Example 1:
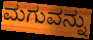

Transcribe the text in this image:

ಮಗುವನ್ನು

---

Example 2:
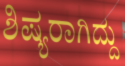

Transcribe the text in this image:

ಶಿಷ್ಯರಾಗಿದ್ದು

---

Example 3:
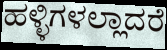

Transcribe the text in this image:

ಹಳ್ಳಿಗಳಲ್ಲಾದರೆ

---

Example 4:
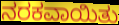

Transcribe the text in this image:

ನರಕವಾಯಿತು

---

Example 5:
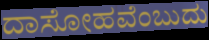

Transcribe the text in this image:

ದಾಸೋಹವೆಂಬುದು